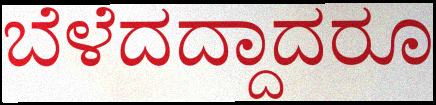
ಬೆಳೆದದ್ದಾದರೂ